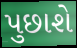
પુછાશે